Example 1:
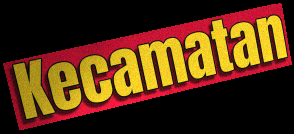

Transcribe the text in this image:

Kecamatan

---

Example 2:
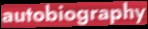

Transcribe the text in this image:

autobiography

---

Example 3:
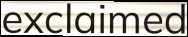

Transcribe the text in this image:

exclaimed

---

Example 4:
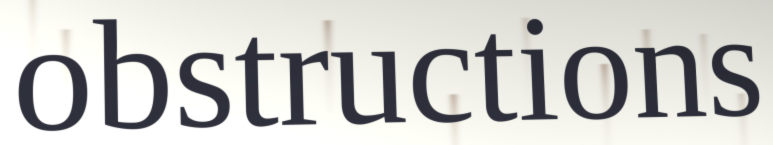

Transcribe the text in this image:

obstructions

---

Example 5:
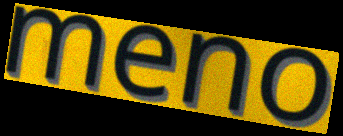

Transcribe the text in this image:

meno